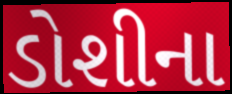
ડોશીના